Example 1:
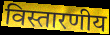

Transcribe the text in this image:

विस्तारणीय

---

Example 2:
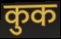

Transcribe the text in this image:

कुक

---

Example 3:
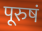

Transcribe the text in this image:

पूरुषं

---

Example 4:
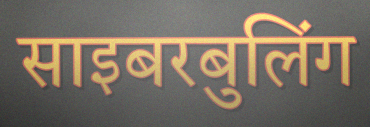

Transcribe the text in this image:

साइबरबुलिंग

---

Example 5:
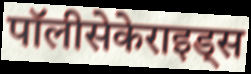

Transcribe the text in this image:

पॉलीसेकेराइड्स